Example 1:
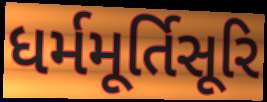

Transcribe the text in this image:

ધર્મમૂર્તિસૂરિ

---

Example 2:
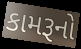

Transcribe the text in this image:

કામરૂનો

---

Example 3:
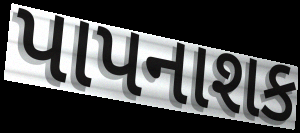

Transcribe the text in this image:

પાપનાશક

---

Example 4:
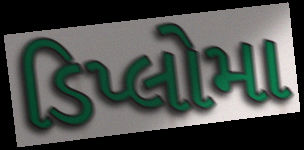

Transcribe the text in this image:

ડિપ્લોમા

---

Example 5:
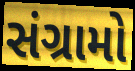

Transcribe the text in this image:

સંગ્રામો